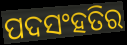
ପଦସଂହତିର